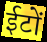
ईटों